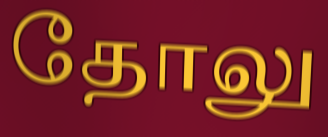
தோலு